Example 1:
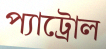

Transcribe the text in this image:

প্যাট্রোল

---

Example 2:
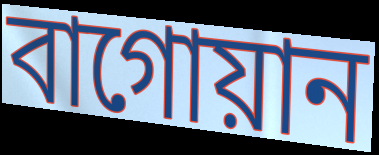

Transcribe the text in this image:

বাগোয়ান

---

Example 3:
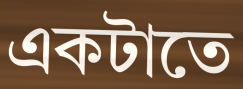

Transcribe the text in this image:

একটাতে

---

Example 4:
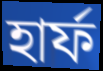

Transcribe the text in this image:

হার্ফ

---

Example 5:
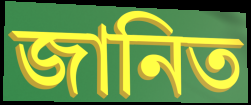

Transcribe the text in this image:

জানিত